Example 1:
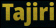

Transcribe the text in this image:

Tajiri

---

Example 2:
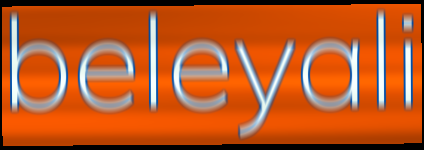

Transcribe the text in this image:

beleyali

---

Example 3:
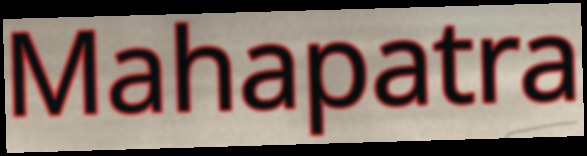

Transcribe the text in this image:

Mahapatra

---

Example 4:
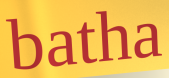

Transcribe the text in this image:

batha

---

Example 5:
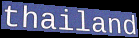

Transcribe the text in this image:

thailand